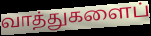
வாத்துகளைப்